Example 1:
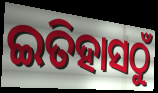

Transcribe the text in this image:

ଇତିହାସଠୁଁ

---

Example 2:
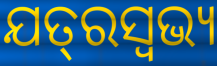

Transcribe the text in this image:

ଯତ୍‌ରସ୍ଵଭ୍ୟ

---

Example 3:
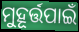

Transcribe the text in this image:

ମୁହୂର୍ତ୍ତପାଇଁ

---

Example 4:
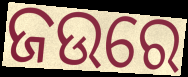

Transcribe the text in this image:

ଜଉରେ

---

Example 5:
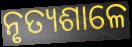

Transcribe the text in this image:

ନୃତ୍ୟଶାଳେ